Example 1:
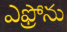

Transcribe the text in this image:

ఎఫ్రోను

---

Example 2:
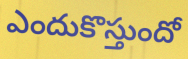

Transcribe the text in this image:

ఎందుకొస్తుందో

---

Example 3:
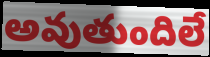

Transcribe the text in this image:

అవుతుందిలే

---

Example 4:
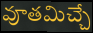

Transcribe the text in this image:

వూతమిచ్చే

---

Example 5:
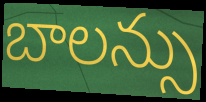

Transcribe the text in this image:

బాలన్సు